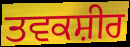
ਤਵਕਸ਼ੀਰ